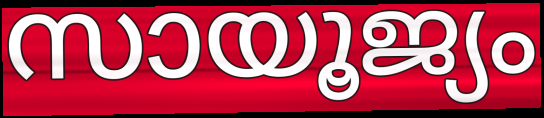
സായൂജ്യം